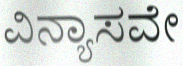
ವಿನ್ಯಾಸವೇ